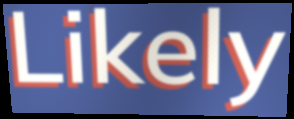
Likely